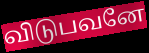
விடுபவனே